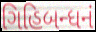
ગિહિબન્ધનં